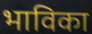
भाविका